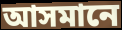
আসমানে